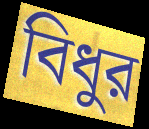
বিধুর